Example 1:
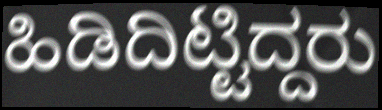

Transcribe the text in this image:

ಹಿಡಿದಿಟ್ಟಿದ್ದರು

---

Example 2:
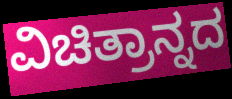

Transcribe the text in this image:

ವಿಚಿತ್ರಾನ್ನದ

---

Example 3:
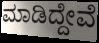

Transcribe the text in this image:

ಮಾಡಿದ್ದೇವೆ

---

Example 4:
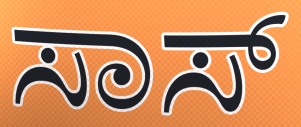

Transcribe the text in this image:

ಸಾಸ್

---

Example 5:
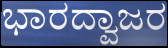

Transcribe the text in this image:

ಭಾರದ್ವಾಜರ